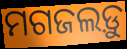
ମଗଜଲଡ଼ୁ